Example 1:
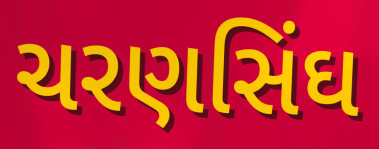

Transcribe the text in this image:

ચરણસિંઘ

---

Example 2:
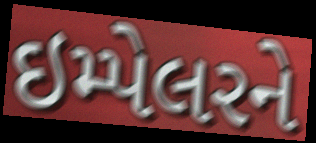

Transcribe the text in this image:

ઇમ્પેલરને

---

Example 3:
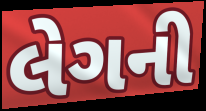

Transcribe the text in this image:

લેગની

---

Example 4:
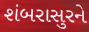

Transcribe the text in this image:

શંબરાસુરને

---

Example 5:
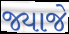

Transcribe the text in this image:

જ્યાજે